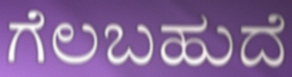
ಗೆಲಬಹುದೆ